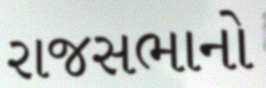
રાજસભાનો